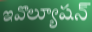
ఇవొల్యూషన్